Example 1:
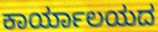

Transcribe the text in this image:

ಕಾರ್ಯಾಲಯದ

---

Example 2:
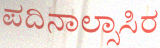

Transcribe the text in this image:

ಪದಿನಾಲ್ಸಾಸಿರ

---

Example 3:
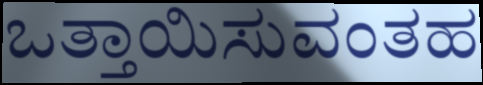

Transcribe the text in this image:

ಒತ್ತಾಯಿಸುವಂತಹ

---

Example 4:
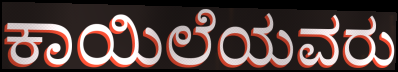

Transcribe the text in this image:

ಕಾಯಿಲೆಯವರು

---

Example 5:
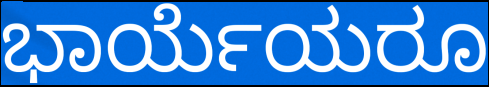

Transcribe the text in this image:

ಭಾರ್ಯೆಯರೂ